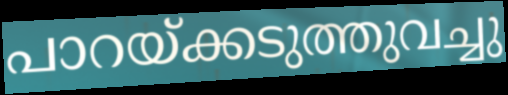
പാറയ്ക്കടുത്തുവച്ചു